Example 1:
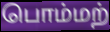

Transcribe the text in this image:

பொம்மற்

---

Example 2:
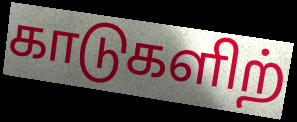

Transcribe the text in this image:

காடுகளிற்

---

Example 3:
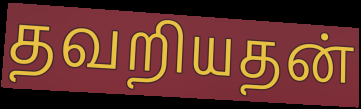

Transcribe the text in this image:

தவறியதன்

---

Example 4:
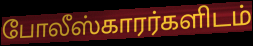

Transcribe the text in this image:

போலீஸ்காரர்களிடம்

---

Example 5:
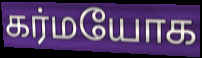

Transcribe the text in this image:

கர்மயோக